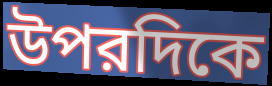
উপরদিকে